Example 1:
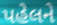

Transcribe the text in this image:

પહેલને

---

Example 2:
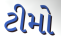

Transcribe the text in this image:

ટીમો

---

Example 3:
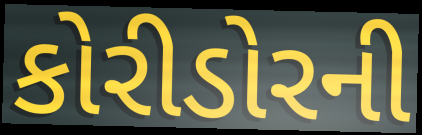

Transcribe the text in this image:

કોરીડોરની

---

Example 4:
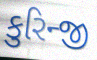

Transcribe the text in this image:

કુરિન્જી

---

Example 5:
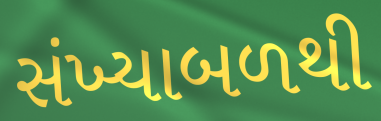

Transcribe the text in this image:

સંખ્યાબળથી